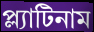
প্ল্যাটিনাম